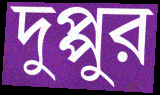
দুপ্পুর